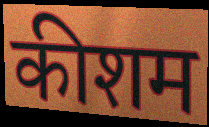
कीशम